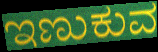
ಇಣುಕುವ